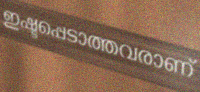
ഇഷ്ടപ്പെടാത്തവരാണ്